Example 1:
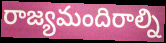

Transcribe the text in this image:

రాజ్యమందిరాల్ని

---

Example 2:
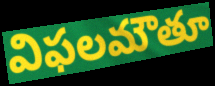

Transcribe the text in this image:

విఫలమౌతూ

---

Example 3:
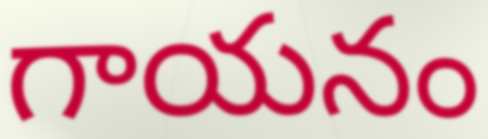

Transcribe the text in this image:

గాయనం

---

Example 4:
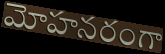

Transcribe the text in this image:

మోహనరంగా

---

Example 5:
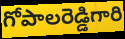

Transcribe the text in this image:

గోపాలరెడ్డిగారి